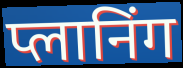
प्‍लानिंग